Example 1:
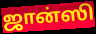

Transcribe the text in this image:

ஜான்ஸி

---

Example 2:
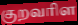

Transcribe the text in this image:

குறவரிள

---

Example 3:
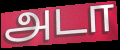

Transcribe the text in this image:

அடா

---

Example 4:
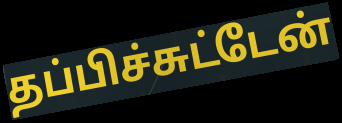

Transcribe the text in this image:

தப்பிச்சுட்டேன்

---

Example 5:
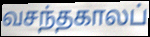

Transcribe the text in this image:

வசந்தகாலப்